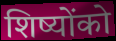
शिष्योंको